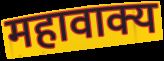
महावाक्य